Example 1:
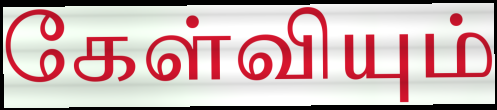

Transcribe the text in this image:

கேள்வியும்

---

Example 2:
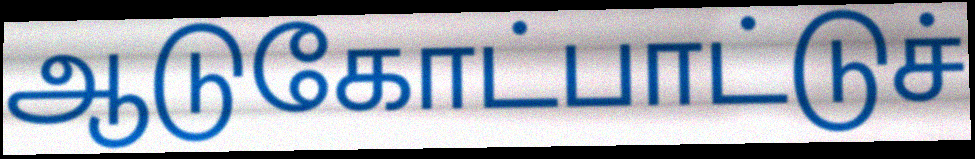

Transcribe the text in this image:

ஆடுகோட்பாட்டுச்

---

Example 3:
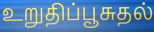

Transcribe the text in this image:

உறுதிப்பூசுதல்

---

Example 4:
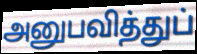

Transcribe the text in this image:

அனுபவித்துப்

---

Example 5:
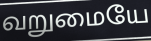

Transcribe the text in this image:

வறுமையே